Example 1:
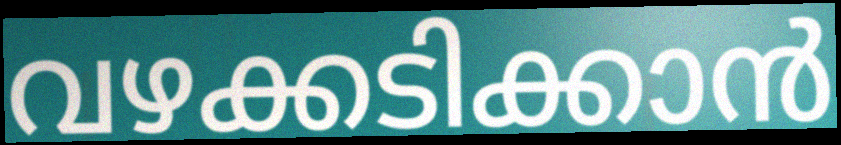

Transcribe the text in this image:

വഴക്കടിക്കാൻ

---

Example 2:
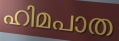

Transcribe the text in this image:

ഹിമപാത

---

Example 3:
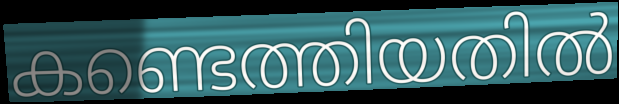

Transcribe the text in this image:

കണ്ടെത്തിയതിൽ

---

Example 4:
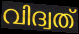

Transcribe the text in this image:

വിദ്വത്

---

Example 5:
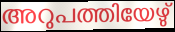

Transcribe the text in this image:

അറുപത്തിയേഴു്